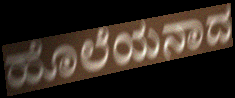
ಹೊಲೆಯನಾದ